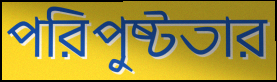
পরিপুষ্টতার